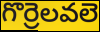
గొర్రెలవలె